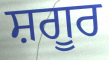
ਸ਼ਗੂਰ